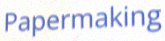
Papermaking